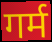
गर्म